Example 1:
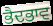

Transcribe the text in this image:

ਭੈਦਭਾਵ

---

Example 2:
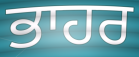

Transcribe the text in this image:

ਭਾਹਰ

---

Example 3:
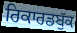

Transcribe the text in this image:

ਰਿਕਾਰਡਬੁੱਕ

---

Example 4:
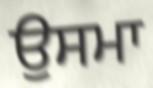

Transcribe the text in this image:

ਉਸਮਾ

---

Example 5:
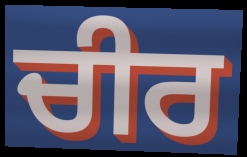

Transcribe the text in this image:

ਚੀਰ